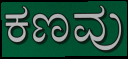
ಕಣವು